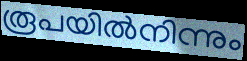
രൂപയിൽനിന്നും